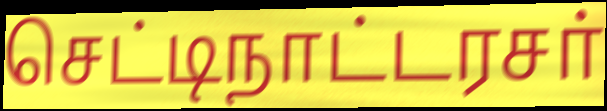
செட்டிநாட்டரசர்